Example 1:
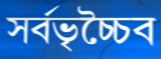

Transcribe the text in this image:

সর্বভৃচ্চৈব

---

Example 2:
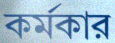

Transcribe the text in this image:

কর্মকার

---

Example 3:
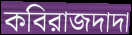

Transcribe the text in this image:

কবিরাজদাদা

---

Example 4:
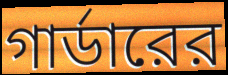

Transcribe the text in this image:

গার্ডারের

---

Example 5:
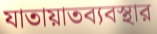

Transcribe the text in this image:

যাতায়াতব্যবস্থার